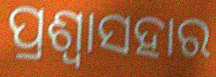
ପ୍ରଶ୍ଵାସହାର